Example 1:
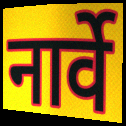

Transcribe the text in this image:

नार्वे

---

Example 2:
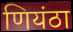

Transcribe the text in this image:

णियंठा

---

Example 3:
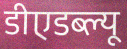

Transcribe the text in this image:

डीएडब्ल्यू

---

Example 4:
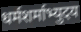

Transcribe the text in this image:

धर्मशर्माभ्युदय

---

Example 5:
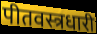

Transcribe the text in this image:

पीतवस्त्रधारी